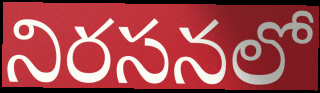
నిరసనలో